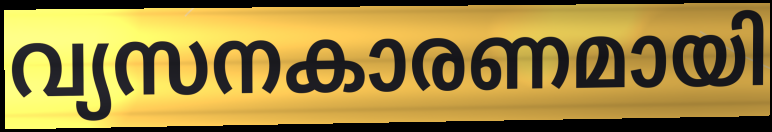
വ്യസനകാരണമായി